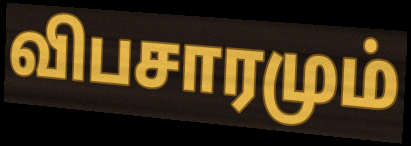
விபசாரமும்